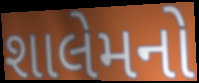
શાલેમનો